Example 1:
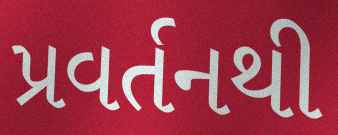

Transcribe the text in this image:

પ્રવર્તનથી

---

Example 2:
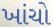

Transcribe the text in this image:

ખાંચો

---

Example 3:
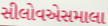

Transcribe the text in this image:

સીલોવએસમાલા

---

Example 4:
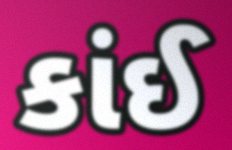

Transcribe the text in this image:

કાંઈ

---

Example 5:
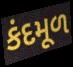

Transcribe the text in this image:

કંદમૂળ